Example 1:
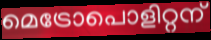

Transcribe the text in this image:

മെട്രോപൊളിറ്റന്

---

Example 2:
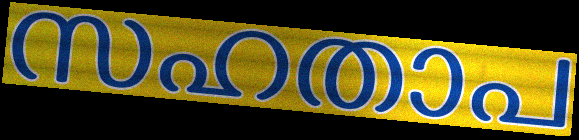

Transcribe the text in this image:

സഹതാപ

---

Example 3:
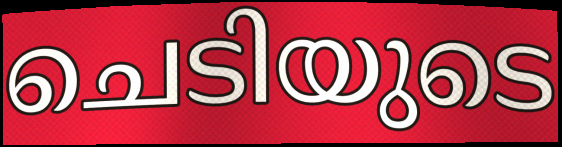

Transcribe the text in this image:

ചെടിയുടെ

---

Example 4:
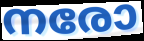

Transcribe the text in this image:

നരോ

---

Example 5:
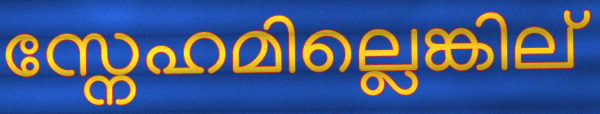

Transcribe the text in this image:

സ്നേഹമില്ലെങ്കില്